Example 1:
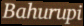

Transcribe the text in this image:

Bahurupi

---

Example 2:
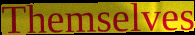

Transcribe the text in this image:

Themselves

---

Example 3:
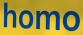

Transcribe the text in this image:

homo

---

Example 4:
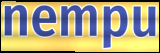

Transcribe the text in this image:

nempu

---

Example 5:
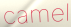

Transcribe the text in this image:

camel